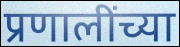
प्रणालींच्या